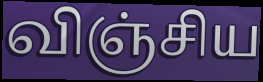
விஞ்சிய